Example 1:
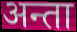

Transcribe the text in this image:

अन्ता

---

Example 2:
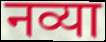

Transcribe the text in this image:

नव्‍या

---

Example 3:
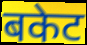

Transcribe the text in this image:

बकेट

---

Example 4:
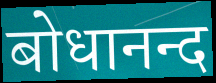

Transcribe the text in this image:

बोधानन्द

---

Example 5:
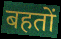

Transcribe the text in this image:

बहतों